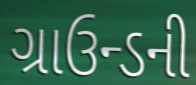
ગ્રાઉન્ડની